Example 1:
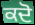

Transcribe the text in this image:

ਕਦੋ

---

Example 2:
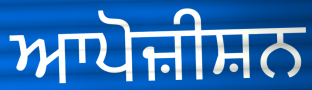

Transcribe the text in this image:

ਆਪੋਜ਼ੀਸ਼ਨ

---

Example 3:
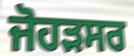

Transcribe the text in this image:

ਜੋਹੜਸਰ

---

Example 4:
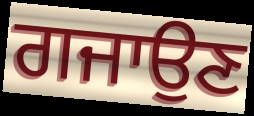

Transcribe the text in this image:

ਗਜਾਉਣ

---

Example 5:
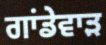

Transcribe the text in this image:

ਗਾਂਡੇਵਾੜ